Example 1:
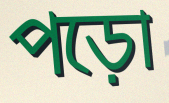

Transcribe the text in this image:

পড়ো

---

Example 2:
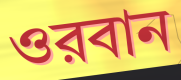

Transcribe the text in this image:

ওরবান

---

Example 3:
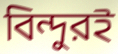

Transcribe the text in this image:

বিন্দুরই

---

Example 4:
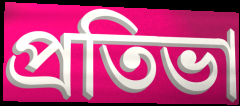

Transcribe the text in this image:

প্রতিভা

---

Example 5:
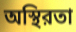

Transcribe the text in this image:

অস্থিরতা